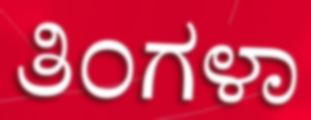
ತಿಂಗಳಾ